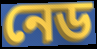
নেড